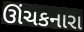
ઊંચકનારા